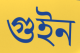
গুইন